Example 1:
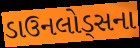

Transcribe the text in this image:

ડાઉનલોડ્સના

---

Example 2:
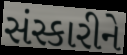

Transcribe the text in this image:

સંસ્કારીને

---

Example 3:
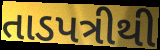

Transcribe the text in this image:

તાડપત્રીથી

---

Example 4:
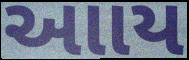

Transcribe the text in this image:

આાય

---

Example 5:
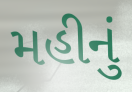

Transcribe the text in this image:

મહીનું